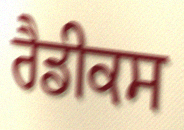
ਰੈਡੀਕਸ